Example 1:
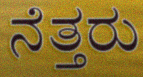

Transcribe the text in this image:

ನೆತ್ತರು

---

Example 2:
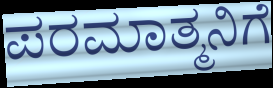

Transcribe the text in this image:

ಪರಮಾತ್ಮನಿಗೆ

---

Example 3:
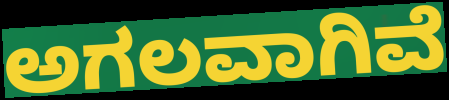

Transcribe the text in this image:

ಅಗಲವಾಗಿವೆ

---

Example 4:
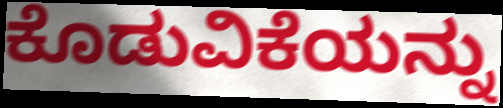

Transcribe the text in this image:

ಕೊಡುವಿಕೆಯನ್ನು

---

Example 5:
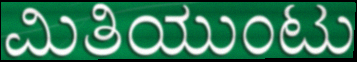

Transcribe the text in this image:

ಮಿತಿಯುಂಟು